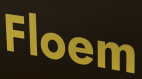
Floem